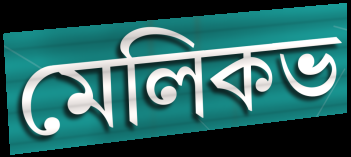
মেলিকভ